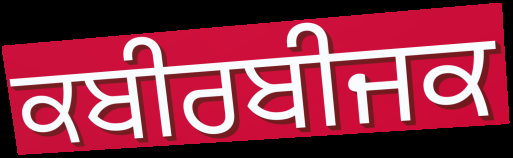
ਕਬੀਰਬੀਜਕ